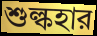
শুল্কহার